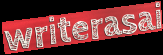
writerasai